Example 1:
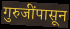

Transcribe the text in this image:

गुरुजींपासून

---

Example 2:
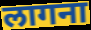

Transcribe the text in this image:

लागना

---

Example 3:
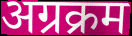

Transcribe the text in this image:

अग्रक्रम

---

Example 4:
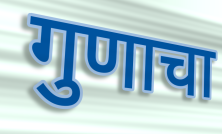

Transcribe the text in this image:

गुणाचा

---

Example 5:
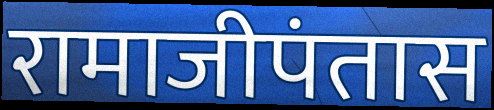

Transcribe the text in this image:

रामाजीपंतास